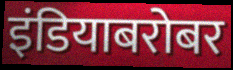
इंडियाबरोबर